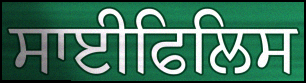
ਸਾਈਫਿਲਿਸ